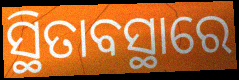
ସ୍ଥିତାବସ୍ଥାରେ